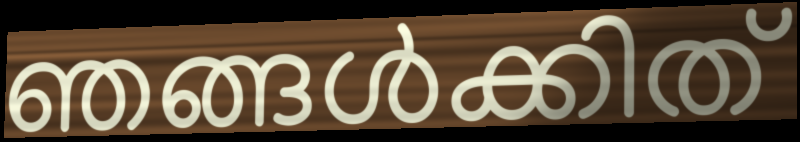
ഞങ്ങൾക്കിത്